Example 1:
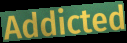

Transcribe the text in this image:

Addicted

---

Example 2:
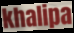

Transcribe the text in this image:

khalipa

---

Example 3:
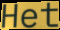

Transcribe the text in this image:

Het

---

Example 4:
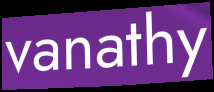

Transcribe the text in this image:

vanathy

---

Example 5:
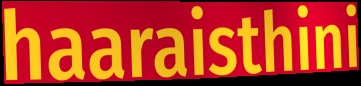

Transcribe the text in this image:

haaraisthini